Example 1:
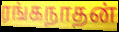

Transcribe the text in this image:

ரங்கநாதன்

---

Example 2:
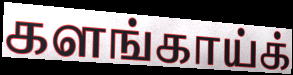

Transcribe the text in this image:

களங்காய்க்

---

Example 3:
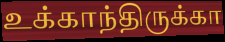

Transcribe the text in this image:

உக்காந்திருக்கா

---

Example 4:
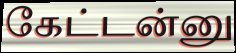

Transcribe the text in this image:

கேட்டன்னு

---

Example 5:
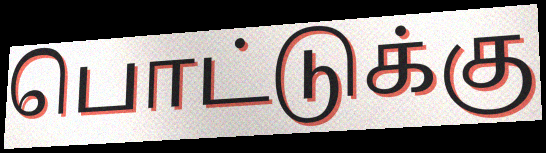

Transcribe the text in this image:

பொட்டுக்கு